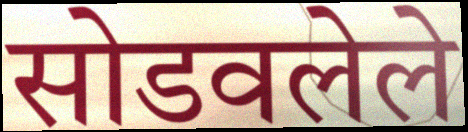
सोडवलेले